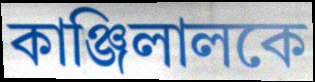
কাঞ্জিলালকে